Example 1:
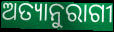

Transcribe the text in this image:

ଅତ୍ୟାନୁରାଗୀ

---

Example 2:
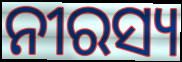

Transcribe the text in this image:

ନୀରସ୍ୟ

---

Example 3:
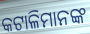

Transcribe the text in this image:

କଟାଳିମାନଙ୍କ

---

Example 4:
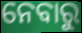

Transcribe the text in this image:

ନେବାରୁ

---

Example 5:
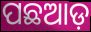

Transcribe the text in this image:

ପଛଆଡ଼